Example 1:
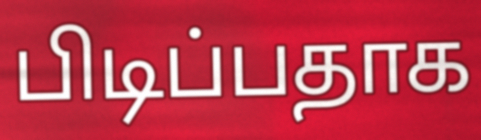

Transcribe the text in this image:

பிடிப்பதாக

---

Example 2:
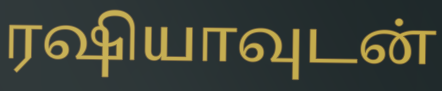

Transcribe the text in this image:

ரஷியாவுடன்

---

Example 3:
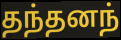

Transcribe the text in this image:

தந்தனந்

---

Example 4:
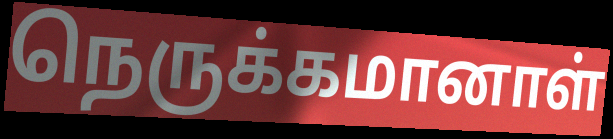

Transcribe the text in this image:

நெருக்கமானாள்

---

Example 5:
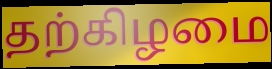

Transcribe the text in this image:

தற்கிழமை